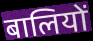
बालियों